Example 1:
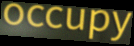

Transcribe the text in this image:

occupy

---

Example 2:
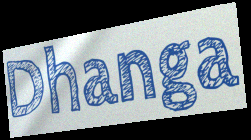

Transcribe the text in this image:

Dhanga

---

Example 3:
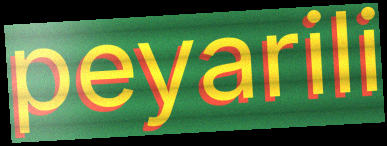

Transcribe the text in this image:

peyarili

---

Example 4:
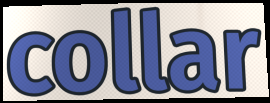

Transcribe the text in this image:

collar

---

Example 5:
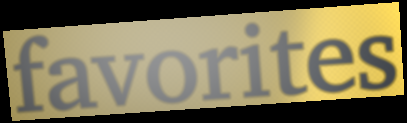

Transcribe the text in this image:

favorites